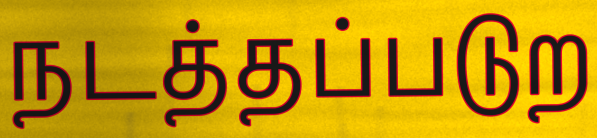
நடத்தப்படுற